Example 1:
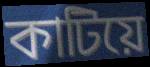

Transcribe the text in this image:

কাটিয়ে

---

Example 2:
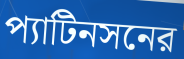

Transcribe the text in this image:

প্যাটিনসনের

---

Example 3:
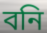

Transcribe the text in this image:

বনি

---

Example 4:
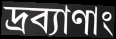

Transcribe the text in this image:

দ্রব্যাণাং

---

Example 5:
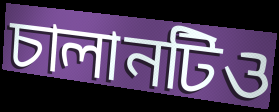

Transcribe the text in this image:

চালানটিও